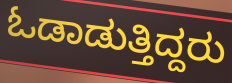
ಓಡಾಡುತ್ತಿದ್ದರು